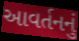
આવર્તનનું